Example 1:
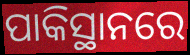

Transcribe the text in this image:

ପାକିସ୍ଥାନରେ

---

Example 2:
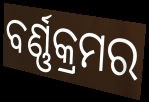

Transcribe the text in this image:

ବର୍ଣ୍ଣକ୍ରମର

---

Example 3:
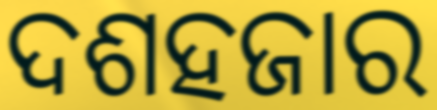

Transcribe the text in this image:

ଦଶହଜାର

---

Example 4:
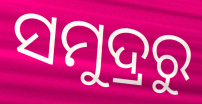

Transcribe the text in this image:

ସମୁଦ୍ରରୁ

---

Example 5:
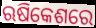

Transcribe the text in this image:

ଋଷିକେଶରେ